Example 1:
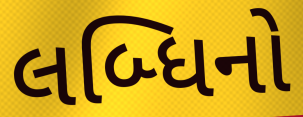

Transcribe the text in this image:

લબ્ધિનો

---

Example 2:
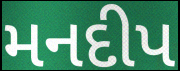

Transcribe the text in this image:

મનદીપ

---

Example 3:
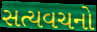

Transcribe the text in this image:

સત્યવચનો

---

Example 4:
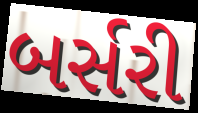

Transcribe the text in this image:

બર્સરી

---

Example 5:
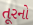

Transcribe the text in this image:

તૂરનો